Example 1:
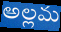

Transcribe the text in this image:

అల్లమ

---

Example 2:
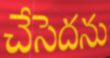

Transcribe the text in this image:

చేసెదను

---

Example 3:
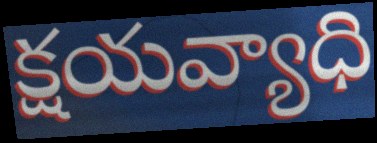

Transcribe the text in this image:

క్షయవ్యాధి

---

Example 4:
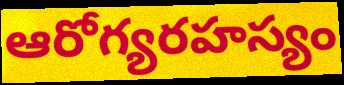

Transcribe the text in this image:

ఆరోగ్యరహస్యం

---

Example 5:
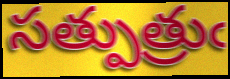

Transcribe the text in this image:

సత్పుత్రుఁ